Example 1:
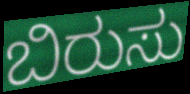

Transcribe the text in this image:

ಬಿರುಸು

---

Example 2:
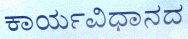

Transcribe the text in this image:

ಕಾರ್ಯವಿಧಾನದ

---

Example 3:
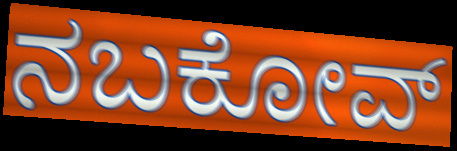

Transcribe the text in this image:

ನಬಕೋವ್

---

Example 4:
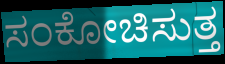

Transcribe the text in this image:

ಸಂಕೋಚಿಸುತ್ತ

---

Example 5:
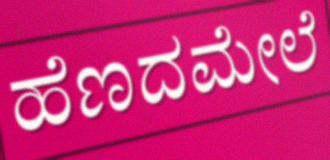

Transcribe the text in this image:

ಹೆಣದಮೇಲೆ